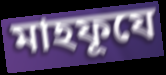
মাহফূযে